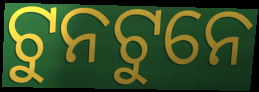
ଟୁନଟୁନେ